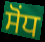
ਸੋਂਧ